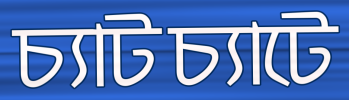
চ্যাটচ্যাটে